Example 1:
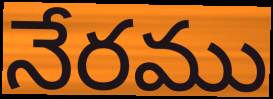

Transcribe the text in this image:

నేరము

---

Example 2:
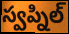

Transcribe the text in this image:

స్వప్నిల్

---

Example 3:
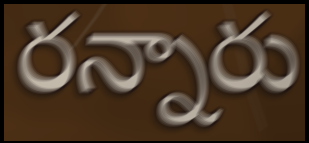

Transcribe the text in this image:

రన్నారు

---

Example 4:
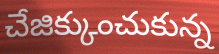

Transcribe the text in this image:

చేజిక్కుంచుకున్న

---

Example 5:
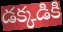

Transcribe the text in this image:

డక్కడికి